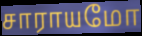
சாராயமோ